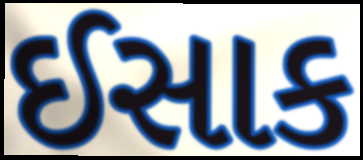
ઈસાક